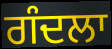
ਗੰਦਲਾ